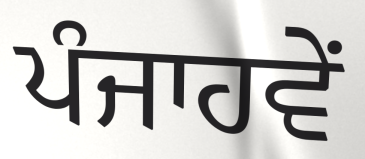
ਪੰਜਾਹਵੇਂ